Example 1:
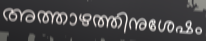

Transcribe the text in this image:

അത്താഴത്തിനുശേഷം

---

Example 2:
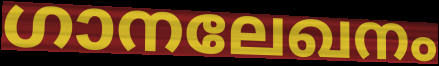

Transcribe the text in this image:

ഗാനലേഖനം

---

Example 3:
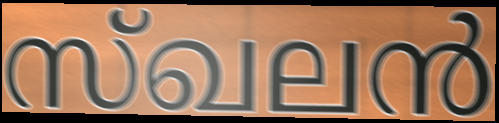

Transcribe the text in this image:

സ്ഖലൻ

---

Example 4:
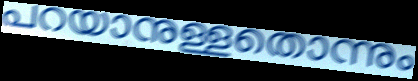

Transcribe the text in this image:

പറയാനുള്ളതൊന്നും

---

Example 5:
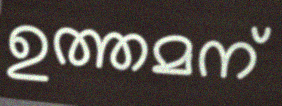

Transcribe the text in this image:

ഉത്തമന്